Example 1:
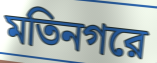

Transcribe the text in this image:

মতিনগরে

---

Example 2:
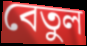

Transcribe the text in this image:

বেতুল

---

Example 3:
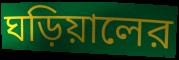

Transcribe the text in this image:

ঘড়িয়ালের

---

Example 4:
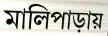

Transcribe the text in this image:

মালিপাড়ায়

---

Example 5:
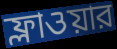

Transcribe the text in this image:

ফ্লাওয়ার